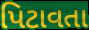
પિટાવતા